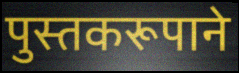
पुस्तकरूपाने